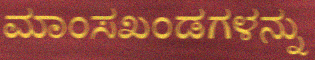
ಮಾಂಸಖಂಡಗಳನ್ನು